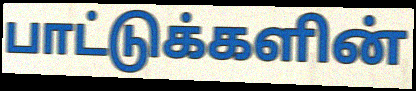
பாட்டுக்களின்